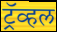
ट्रॅव्हल